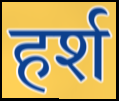
हर्श